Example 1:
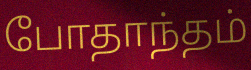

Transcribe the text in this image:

போதாந்தம்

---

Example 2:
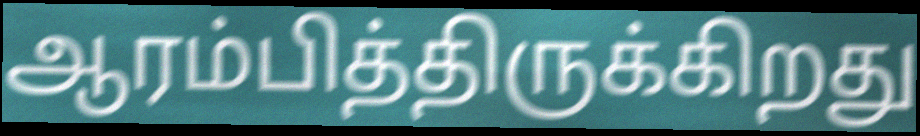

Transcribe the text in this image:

ஆரம்பித்திருக்கிறது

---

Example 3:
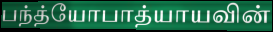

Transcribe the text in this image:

பந்த்யோபாத்யாயவின்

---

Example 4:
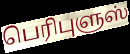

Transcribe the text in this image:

பெரிபுளுஸ்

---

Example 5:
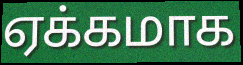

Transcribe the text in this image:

ஏக்கமாக